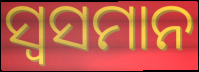
ସ୍ୱସମାନ